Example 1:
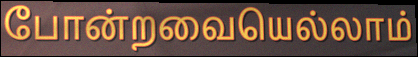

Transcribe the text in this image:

போன்றவையெல்லாம்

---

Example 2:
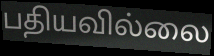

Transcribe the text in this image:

பதியவில்லை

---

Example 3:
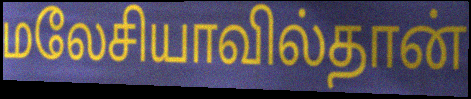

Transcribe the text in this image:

மலேசியாவில்தான்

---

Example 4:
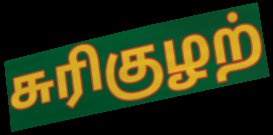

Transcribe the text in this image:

சுரிகுழற்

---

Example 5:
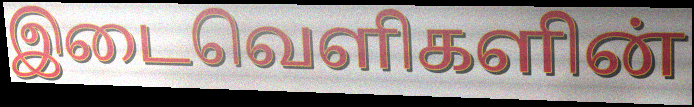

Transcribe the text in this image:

இடைவெளிகளின்